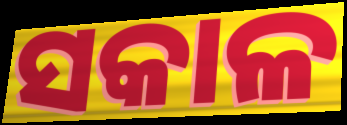
ସକାଳ